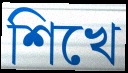
শিখে